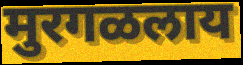
मुरगळलाय